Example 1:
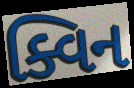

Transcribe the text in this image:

ક્વિન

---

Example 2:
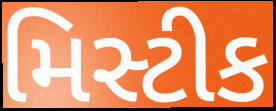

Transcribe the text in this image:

મિસ્ટીક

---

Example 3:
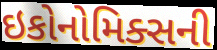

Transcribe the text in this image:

ઇકોનોમિક્સની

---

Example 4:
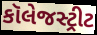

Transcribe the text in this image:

કૉલેજસ્ટ્રીટ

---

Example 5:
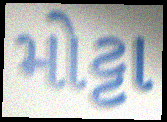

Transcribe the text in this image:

મોટ્ટા